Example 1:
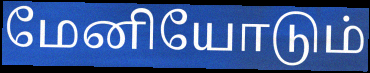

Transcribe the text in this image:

மேனியோடும்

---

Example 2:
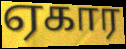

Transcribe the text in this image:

ஏகார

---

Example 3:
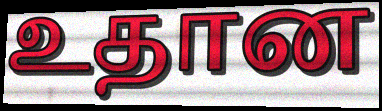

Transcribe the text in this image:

உதான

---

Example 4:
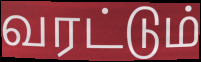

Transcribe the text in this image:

வரட்டும்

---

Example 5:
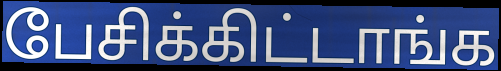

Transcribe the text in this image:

பேசிக்கிட்டாங்க